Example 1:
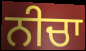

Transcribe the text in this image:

ਨੀਚਾ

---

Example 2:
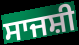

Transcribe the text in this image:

ਸਾਜਸ਼ੀ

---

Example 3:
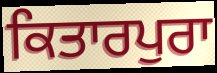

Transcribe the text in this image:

ਕਿਤਾਰਪੁਰਾ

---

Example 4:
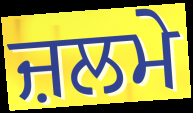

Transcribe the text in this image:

ਜ਼ਲਮੇ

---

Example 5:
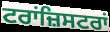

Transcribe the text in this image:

ਟਰਾਂਜ਼ਿਸਟਰਾਂ